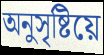
অনুসৃষ্টিয়ে